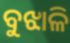
ବୁଝାଳି